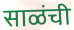
साळंची